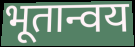
भूतान्वय